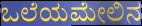
ಒಲೆಯಮೇಲಿನ